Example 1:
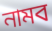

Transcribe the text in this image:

নামব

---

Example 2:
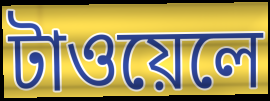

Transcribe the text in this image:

টাওয়েলে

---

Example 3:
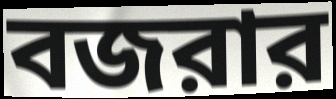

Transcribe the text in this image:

বজরার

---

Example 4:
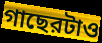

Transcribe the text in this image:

গাছেরটাও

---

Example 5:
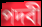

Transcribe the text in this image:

পদবী